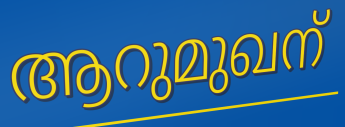
ആറുമുഖന്